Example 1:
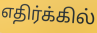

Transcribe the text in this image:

எதிர்க்கில்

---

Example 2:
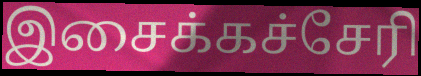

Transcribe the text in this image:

இசைக்கச்சேரி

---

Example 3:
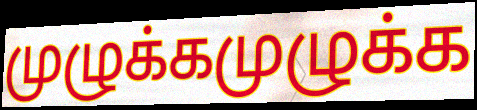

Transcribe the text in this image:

முழுக்கமுழுக்க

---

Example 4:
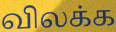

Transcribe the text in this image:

விலக்க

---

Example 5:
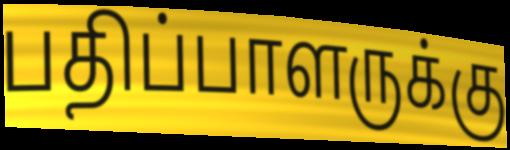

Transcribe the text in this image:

பதிப்பாளருக்கு